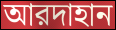
আরদাহান